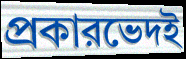
প্রকারভেদই